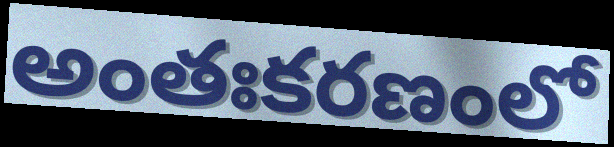
అంతఃకరణంలో